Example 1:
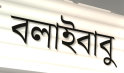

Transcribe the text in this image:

বলাইবাবু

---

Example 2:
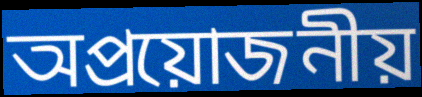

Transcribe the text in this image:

অপ্রয়োজনীয়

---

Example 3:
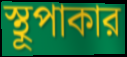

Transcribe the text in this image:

স্থূপাকার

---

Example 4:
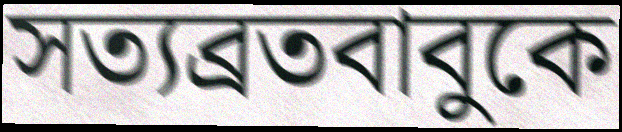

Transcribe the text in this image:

সত্যব্রতবাবুকে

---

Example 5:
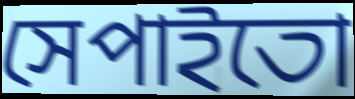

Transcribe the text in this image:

সেপাইতো